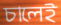
চালেই